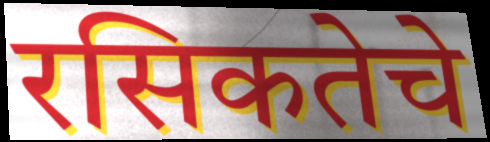
रसिकतेचे